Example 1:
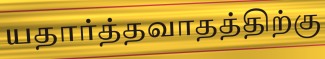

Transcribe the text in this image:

யதார்த்தவாதத்திற்கு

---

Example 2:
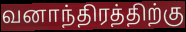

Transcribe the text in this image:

வனாந்திரத்திற்கு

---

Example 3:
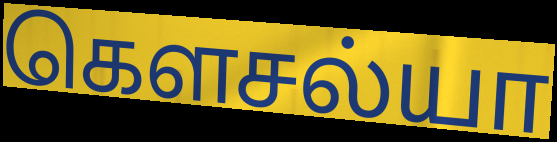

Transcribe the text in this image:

கௌசல்யா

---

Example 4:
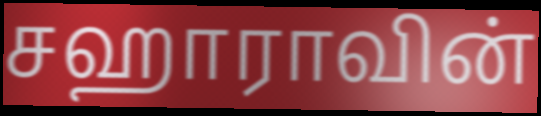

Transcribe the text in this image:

சஹாராவின்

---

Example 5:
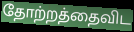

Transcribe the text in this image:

தோற்றத்தைவிட